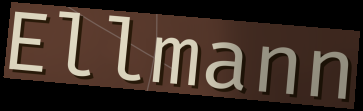
Ellmann